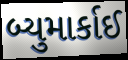
બ્યુમાર્કાઈ